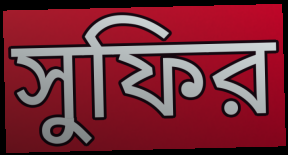
সুফির